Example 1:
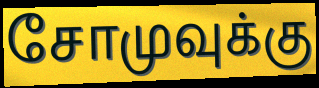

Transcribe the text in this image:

சோமுவுக்கு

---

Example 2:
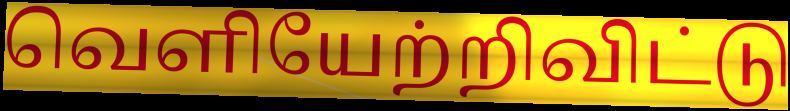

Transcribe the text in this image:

வெளியேற்றிவிட்டு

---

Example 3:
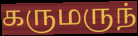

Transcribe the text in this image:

கருமருந்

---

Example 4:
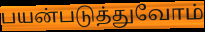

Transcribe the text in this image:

பயன்படுத்துவோம்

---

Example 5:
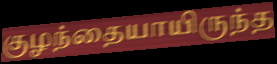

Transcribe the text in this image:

குழந்தையாயிருந்த